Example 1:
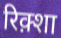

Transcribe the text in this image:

रिक़्शा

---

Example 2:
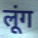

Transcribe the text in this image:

लूंग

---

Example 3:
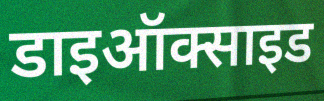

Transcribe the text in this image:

डाइऑक्साइड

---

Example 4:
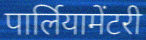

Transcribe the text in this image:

पार्लियामेंटरी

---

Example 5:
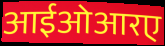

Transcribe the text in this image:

आईओआरए